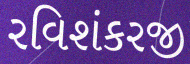
રવિશંકરજી